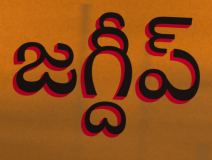
జగ్దీప్